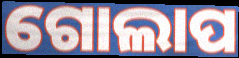
ଗୋଲାପ